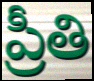
ప్రీతి